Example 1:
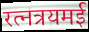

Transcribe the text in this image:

रत्नत्रयमई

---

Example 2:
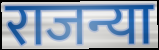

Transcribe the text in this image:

राजन्या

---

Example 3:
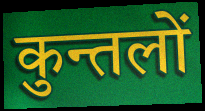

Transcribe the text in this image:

कुन्तलों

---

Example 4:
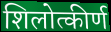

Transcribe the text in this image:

शिलोत्कीर्ण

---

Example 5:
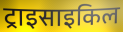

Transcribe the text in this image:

ट्राइसाइकिल